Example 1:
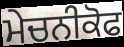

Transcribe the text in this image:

ਮੇਚਨੀਕੋਫ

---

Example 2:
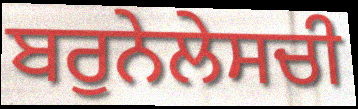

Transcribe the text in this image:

ਬਰੁਨੇਲੇਸਚੀ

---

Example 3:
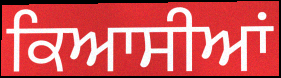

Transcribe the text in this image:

ਕਿਆਸੀਆਂ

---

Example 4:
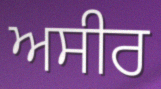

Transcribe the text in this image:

ਅਸੀਰ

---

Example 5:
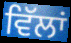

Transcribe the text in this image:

ਵਿੱਲਾਂ